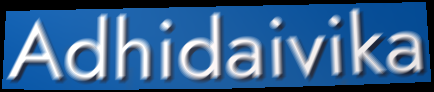
Adhidaivika